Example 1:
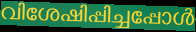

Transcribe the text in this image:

വിശേഷിപ്പിച്ചപ്പോൾ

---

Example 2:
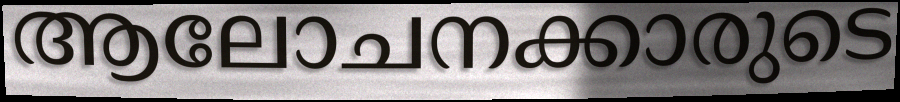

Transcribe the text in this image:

ആലോചനക്കാരുടെ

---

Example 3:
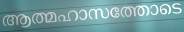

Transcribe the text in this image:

ആത്മഹാസത്തോടെ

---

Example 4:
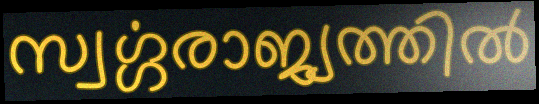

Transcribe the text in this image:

സ്വൎഗ്ഗരാജ്യത്തിൽ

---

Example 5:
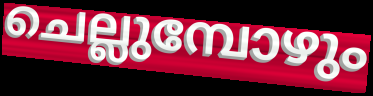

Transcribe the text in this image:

ചെല്ലുമ്പോഴും